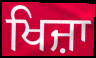
ਖਿਜ਼ਾ